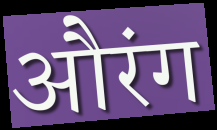
औरंग